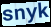
snyk